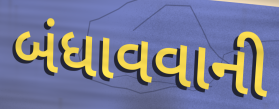
બંધાવવાની